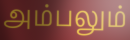
அம்பலும்